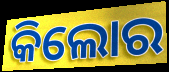
କିଲୋର